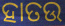
ହାତଉ